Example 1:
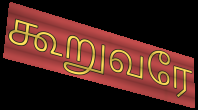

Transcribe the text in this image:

கூறுவரே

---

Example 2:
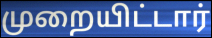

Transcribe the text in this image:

முறையிட்டார்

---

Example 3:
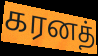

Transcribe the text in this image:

கரனத்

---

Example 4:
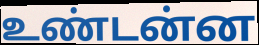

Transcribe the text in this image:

உண்டன்ன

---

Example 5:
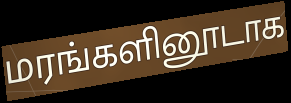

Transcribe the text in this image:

மரங்களினூடாக